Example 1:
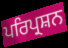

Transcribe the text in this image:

ਪਰਿਪ੍ਰਸ਼ਨ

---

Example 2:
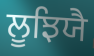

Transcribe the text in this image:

ਲੂਝਿਯੈ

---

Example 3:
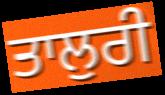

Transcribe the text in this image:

ਤਾਲੁਰੀ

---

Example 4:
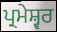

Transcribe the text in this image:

ਪ੍ਰਮੇਸ਼੍ਵਰ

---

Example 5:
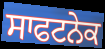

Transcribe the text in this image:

ਸਾਫਟਨੇਕ